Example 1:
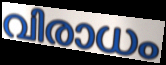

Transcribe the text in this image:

വിരാധം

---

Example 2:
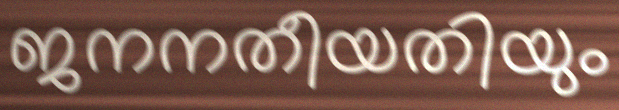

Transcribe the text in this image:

ജനനതീയതിയും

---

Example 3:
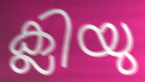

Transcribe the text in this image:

ക്ലിയു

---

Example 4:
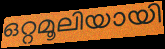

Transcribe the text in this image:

ഒറ്റമൂലിയായി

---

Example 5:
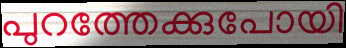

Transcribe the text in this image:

പുറത്തേക്കുപോയി